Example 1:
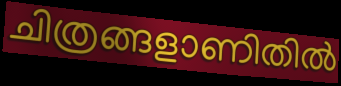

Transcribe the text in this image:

ചിത്രങ്ങളാണിതിൽ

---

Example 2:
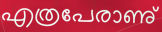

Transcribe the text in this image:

എത്രപേരാണു്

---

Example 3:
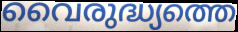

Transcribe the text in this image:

വൈരുദ്ധ്യത്തെ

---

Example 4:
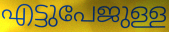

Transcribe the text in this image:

എട്ടുപേജുള്ള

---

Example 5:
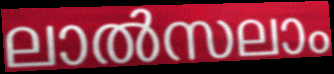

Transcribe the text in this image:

ലാൽസലാം